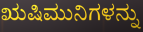
ಋಷಿಮುನಿಗಳನ್ನು